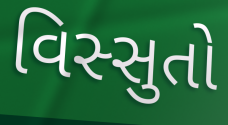
વિસ્સુતો